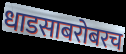
धाडसाबरोबरच